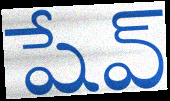
షేవ్